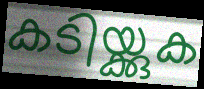
കടിയ്ക്കുക